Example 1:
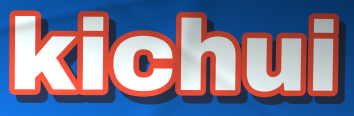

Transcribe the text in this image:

kichui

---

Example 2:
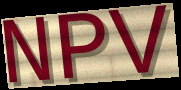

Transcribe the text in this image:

NPV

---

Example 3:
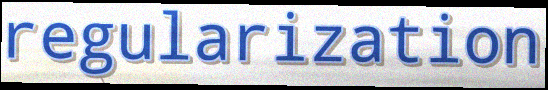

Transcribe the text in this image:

regularization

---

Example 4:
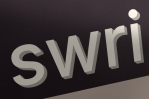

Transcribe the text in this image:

swri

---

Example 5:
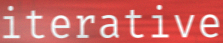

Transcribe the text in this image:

iterative